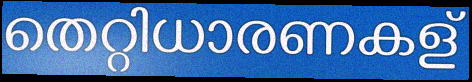
തെറ്റിധാരണകള്